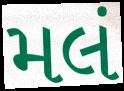
મલં